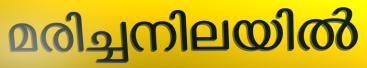
മരിച്ചനിലയിൽ